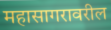
महासागरावरील